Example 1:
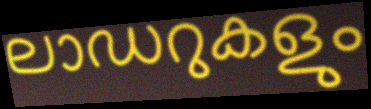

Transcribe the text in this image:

ലാഡറുകളും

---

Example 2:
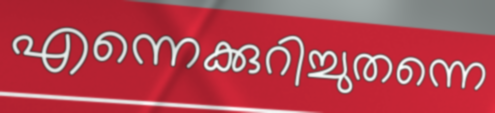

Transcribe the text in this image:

എന്നെക്കുറിച്ചുതന്നെ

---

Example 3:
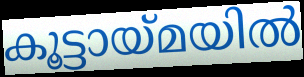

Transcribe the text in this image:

കൂട്ടായ്മയിൽ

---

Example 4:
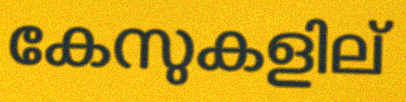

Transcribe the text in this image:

കേസുകളില്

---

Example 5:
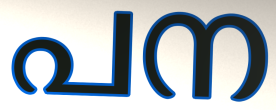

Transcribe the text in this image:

പന